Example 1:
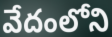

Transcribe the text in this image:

వేదంలోని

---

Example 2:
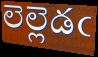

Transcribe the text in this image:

లెల్లెడఁ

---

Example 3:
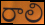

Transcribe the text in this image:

రాలి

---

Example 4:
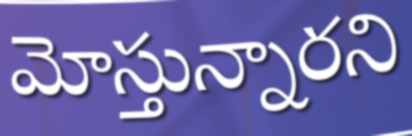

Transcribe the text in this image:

మోస్తున్నారని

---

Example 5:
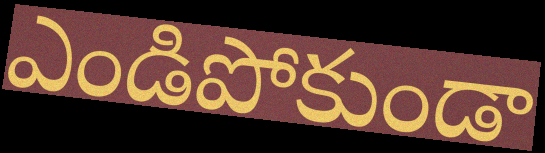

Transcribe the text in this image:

ఎండిపోకుండా